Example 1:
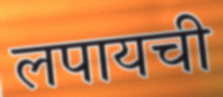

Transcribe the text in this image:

लपायची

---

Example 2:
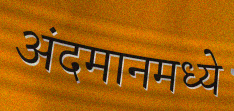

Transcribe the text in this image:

अंदमानमध्ये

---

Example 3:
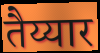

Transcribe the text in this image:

तैय्यार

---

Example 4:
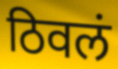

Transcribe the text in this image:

ठिवलं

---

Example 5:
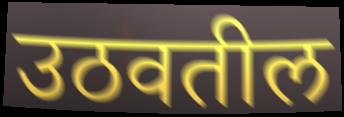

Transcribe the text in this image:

उठवतील